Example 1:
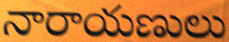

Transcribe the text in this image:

నారాయణులు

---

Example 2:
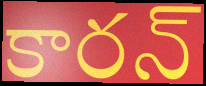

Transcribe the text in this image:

కారన్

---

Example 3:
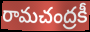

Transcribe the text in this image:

రామచంద్రకీ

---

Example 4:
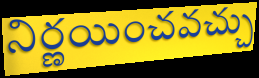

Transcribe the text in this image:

నిర్ణయించవచ్చు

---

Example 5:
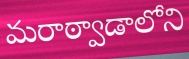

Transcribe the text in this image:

మరాఠ్వాడాలోని